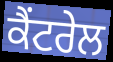
ਕੈਂਟਰੇਲ